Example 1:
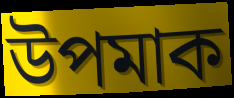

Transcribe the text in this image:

উপমাক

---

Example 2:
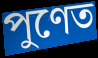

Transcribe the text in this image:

পুণেত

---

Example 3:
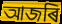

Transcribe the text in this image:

আজৰি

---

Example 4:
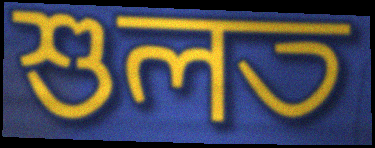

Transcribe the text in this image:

শুলত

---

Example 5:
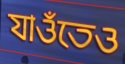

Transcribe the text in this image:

যাওঁতেও